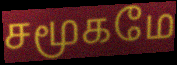
சமூகமே